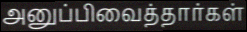
அனுப்பிவைத்தார்கள்